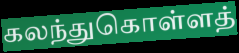
கலந்துகொள்ளத்